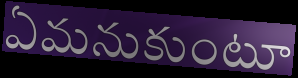
ఏమనుకుంటూ